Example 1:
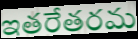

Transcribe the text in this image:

ఇతరేతరమ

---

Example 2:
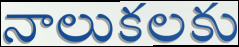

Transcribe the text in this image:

నాలుకలకు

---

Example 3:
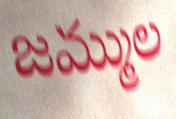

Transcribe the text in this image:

జమ్ముల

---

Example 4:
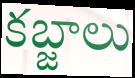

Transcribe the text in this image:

కబ్జాలు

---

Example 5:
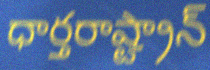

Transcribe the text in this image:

ధార్తరాష్ట్రాన్